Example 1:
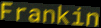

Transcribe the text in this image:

Frankin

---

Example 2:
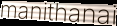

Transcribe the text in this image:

manithanai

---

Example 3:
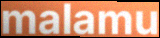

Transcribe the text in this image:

malamu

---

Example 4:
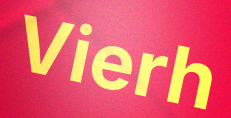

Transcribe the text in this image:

Vierh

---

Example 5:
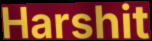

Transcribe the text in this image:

Harshit